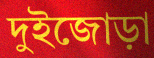
দুইজোড়া